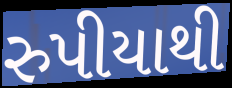
રુપીયાથી